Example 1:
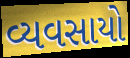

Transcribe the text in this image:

વ્યવસાયો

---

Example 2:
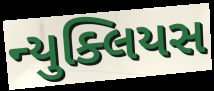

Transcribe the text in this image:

ન્યુક્લિયસ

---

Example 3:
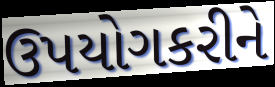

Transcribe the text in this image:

ઉપયોગકરીને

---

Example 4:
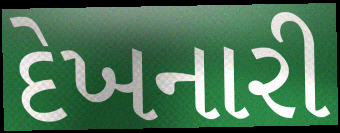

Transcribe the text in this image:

દેખનારી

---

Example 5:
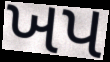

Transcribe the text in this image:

ખપ